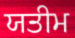
ਯਤੀਮ